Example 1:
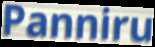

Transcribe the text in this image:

Panniru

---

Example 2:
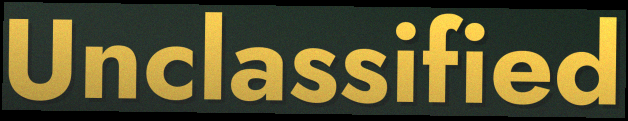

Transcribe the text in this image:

Unclassified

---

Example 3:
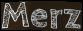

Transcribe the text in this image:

Merz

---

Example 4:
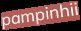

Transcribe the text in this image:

pampinhii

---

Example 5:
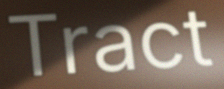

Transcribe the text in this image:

Tract